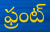
ఫ్రంట్